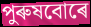
পুৰুষবোৰে